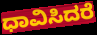
ಧಾವಿಸಿದರೆ